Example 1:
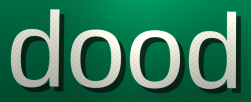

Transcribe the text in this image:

dood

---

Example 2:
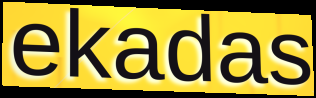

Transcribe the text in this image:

ekadas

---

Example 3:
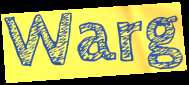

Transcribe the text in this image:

Warg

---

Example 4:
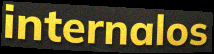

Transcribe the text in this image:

internalos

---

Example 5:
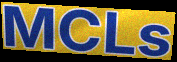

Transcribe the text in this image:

MCLs